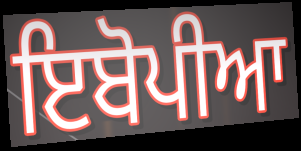
ਇਬੋਪੀਆ